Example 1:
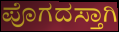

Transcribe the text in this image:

ಪೊಗದಸ್ತಾಗಿ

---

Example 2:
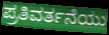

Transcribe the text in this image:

ಪ್ರತಿವರ್ತನೆಯು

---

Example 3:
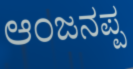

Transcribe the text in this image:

ಆಂಜನಪ್ಪ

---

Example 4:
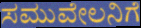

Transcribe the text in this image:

ಸಮುವೇಲನಿಗೆ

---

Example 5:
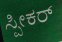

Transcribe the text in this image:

ಸ್ಪೀಕರ್